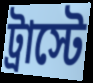
ট্রাস্টে